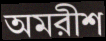
অমরীশ